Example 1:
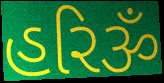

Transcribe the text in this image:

હરિૐ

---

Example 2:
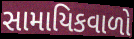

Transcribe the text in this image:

સામાયિકવાળો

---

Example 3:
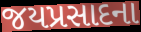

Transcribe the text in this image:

જયપ્રસાદના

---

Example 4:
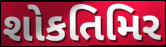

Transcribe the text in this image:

શોકતિમિર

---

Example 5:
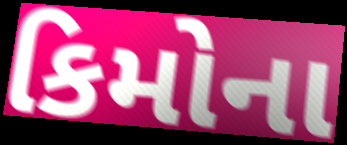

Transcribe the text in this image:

કિમોના